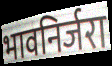
भावनिर्जरा